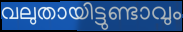
വലുതായിട്ടുണ്ടാവും